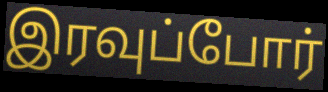
இரவுப்போர்